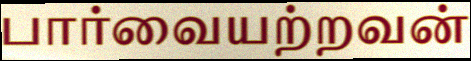
பார்வையற்றவன்